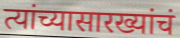
त्यांच्यासारख्यांचं